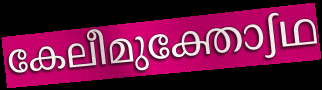
കേലീമുക്തോഽഥ